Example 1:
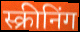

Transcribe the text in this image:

स्क्रीनिंग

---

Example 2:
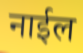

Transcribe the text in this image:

नाईल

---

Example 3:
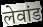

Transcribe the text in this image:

लेवांड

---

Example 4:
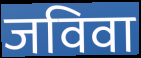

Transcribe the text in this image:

जविवा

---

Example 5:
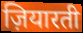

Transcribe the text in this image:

ज़ियारती